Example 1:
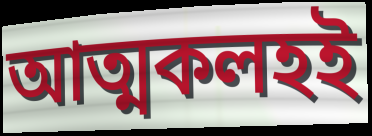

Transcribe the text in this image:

আত্মকলহই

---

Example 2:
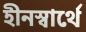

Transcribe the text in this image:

হীনস্বার্থে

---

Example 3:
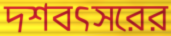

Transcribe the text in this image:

দশবৎসরের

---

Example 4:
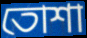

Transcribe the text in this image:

তোশা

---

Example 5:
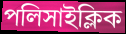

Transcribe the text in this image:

পলিসাইক্লিক